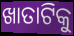
ଖାତାଟିକୁ